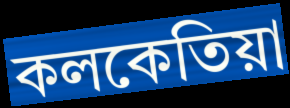
কলকেতিয়া